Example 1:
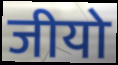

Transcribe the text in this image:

जीयो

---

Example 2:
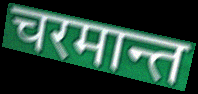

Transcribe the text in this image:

चरमान्त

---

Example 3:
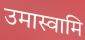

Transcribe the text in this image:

उमास्वामि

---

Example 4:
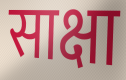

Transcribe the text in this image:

साक्षा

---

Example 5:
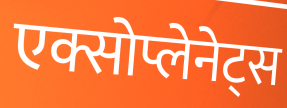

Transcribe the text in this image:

एक्सोप्लेनेट्स